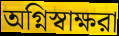
অগ্নিস্বাক্ষরা